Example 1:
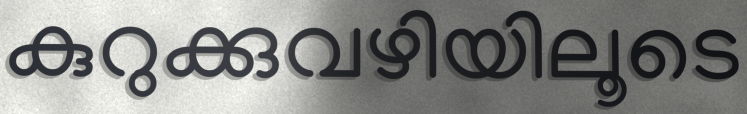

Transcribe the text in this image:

കുറുക്കുവഴിയിലൂടെ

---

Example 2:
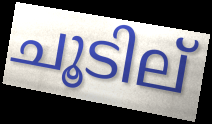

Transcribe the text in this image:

ചൂടില്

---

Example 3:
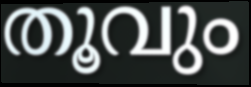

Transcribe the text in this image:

തൂവും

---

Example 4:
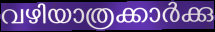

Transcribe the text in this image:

വഴിയാത്രക്കാർക്കു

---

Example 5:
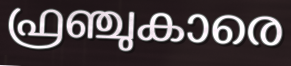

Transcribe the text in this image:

ഫ്രഞ്ചുകാരെ